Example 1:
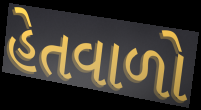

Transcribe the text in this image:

હેતવાળો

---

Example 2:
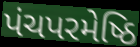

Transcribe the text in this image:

પંચપરમેષ્ઠિ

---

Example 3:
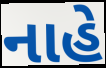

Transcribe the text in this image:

નાહે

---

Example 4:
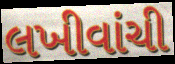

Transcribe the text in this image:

લખીવાંચી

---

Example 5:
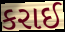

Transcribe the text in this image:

કરાઈ